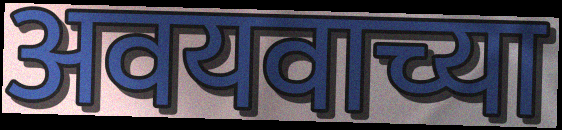
अवयवाच्या